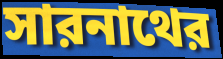
সারনাথের